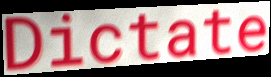
Dictate